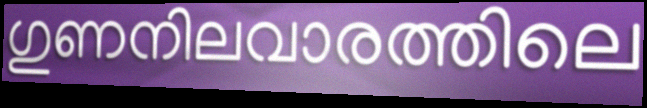
ഗുണനിലവാരത്തിലെ